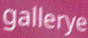
gallerye